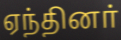
ஏந்தினர்